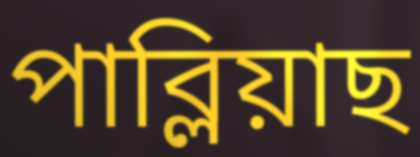
পাব্লিয়াছ